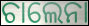
ଚାଲେନା